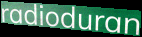
radioduran